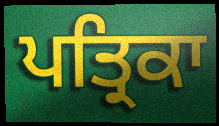
ਪਤ੍ਰਿਕਾ